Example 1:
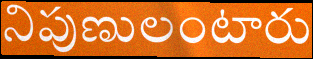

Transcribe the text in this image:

నిపుణులంటారు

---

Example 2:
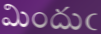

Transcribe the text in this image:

మిందుఁ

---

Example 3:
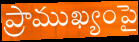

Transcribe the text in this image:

ప్రాముఖ్యంపై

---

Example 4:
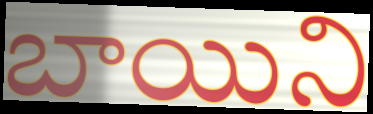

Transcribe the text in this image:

బాయిని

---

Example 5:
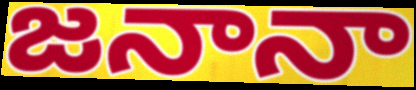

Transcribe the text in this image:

జనానా